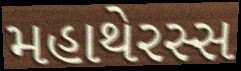
મહાથેરસ્સ